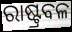
ରାଷ୍ଟ୍ରବଳ